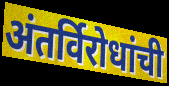
अंतर्विरोधांची